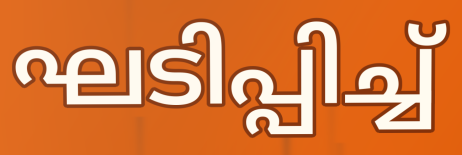
ഘടിപ്പിച്ച്